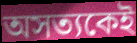
অসত্যকেই